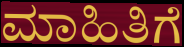
ಮಾಹಿತಿಗೆ